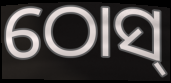
ଠୋସ୍